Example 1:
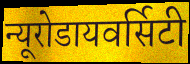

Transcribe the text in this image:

न्यूरोडायवर्सिटी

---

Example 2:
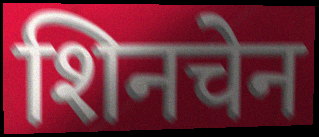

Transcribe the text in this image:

शिनचेन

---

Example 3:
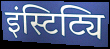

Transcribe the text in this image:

इंस्टिट्यि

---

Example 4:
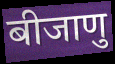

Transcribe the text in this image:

बीजाणु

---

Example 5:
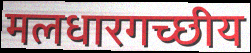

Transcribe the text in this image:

मलधारगच्छीय